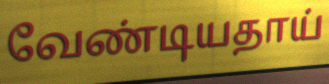
வேண்டியதாய்